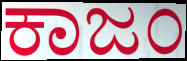
ಕಾಜಂ